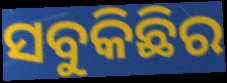
ସବୁକିଛିର